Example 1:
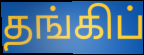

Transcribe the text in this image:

தங்கிப்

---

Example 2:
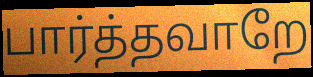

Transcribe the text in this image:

பார்த்தவாறே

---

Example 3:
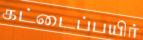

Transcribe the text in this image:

கட்டைப்பயிர்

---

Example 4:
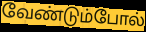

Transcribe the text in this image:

வேண்டும்போல்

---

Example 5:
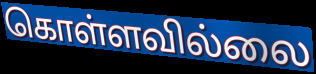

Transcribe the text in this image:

கொள்ளவில்லை